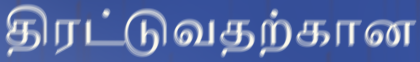
திரட்டுவதற்கான